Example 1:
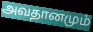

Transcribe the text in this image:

அவதானமும்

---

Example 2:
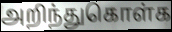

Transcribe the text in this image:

அறிந்துகொள்க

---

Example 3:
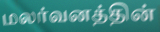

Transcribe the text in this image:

மலர்வனத்தின்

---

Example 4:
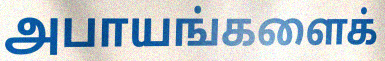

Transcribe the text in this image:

அபாயங்களைக்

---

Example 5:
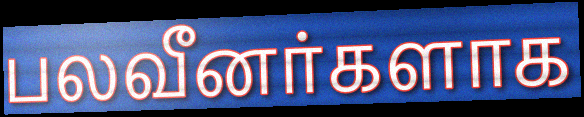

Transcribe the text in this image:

பலவீனர்களாக